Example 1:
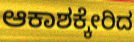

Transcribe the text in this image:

ಆಕಾಶಕ್ಕೇರಿದ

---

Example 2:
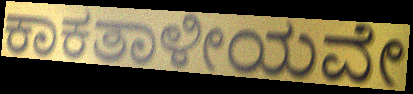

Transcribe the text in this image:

ಕಾಕತಾಳೀಯವೇ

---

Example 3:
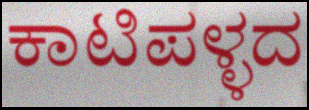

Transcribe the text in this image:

ಕಾಟಿಪಳ್ಳದ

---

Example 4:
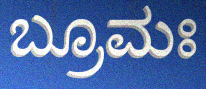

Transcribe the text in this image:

ಬ್ರೂಮಃ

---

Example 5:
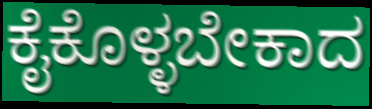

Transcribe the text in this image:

ಕೈಕೊಳ್ಳಬೇಕಾದ